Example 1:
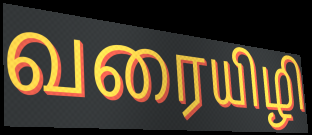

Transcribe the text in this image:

வரையிழி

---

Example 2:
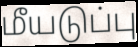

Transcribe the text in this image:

மீயடுப்பு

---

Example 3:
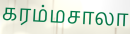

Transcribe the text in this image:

கரம்மசாலா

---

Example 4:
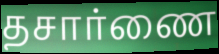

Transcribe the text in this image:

தசார்ணை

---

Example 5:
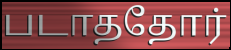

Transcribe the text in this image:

படாததோர்